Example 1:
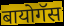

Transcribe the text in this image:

बायोगॅस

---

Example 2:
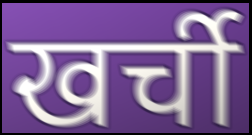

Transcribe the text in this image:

खर्ची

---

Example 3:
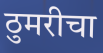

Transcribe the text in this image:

ठुमरीचा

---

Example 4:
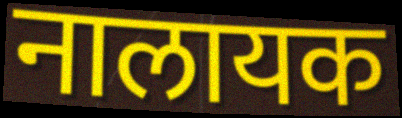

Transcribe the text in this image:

नालायक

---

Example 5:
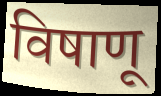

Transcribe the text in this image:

विषाणू